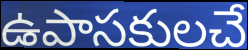
ఉపాసకులచే